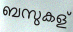
ബസുകള്